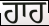
ਹਾਹ